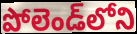
పోలెండ్‌లోని